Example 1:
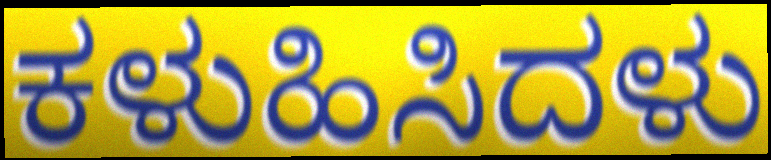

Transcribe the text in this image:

ಕಳುಹಿಸಿದಳು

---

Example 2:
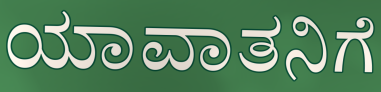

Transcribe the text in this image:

ಯಾವಾತನಿಗೆ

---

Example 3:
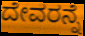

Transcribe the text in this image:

ದೇವರನ್ನೆ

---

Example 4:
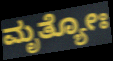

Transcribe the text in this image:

ಮೃತ್ಯೋಃ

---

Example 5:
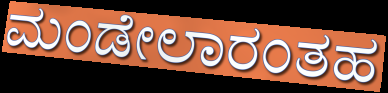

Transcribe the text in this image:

ಮಂಡೇಲಾರಂತಹ